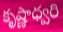
కృష్ణాధ్వరి